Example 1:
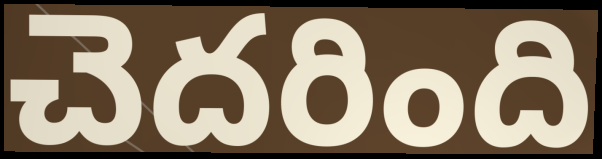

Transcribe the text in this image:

చెదరింది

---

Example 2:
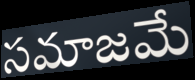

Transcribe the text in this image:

సమాజమే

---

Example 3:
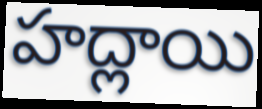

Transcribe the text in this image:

హద్లాయి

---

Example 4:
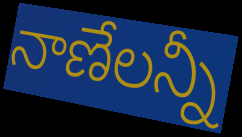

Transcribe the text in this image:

నాణేలన్నీ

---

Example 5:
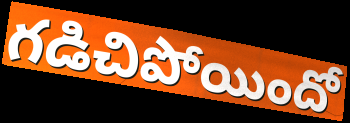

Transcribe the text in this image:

గడిచిపోయిందో